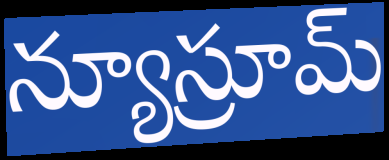
న్యూస్రూమ్